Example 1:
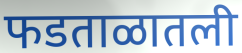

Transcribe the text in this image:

फडताळातली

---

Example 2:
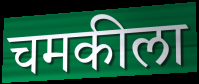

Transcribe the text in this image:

चमकीला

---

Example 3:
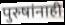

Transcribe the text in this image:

पुरुषांनाही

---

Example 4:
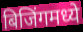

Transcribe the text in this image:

बिजिंगमध्ये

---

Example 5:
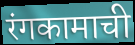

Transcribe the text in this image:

रंगकामाची